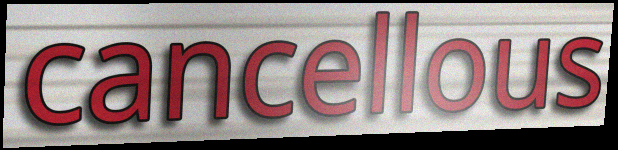
cancellous